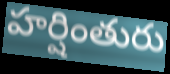
హర్షింతురు